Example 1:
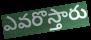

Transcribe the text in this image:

ఎవరొస్తారు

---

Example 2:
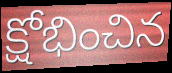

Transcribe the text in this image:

క్షోభించిన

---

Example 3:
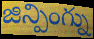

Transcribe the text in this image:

జిన్పింగ్ను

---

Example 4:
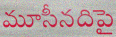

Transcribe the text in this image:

మూసీనదిపై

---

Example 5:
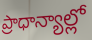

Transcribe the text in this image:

ప్రాధాన్యాల్లో